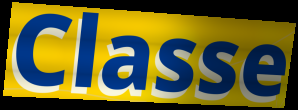
Classe